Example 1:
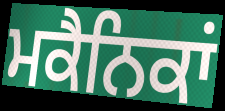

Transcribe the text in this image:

ਮਕੈਨਿਕਾਂ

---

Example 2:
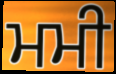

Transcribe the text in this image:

ਮਮੀ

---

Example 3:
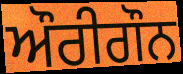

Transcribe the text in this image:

ਔਰੀਗੌਨ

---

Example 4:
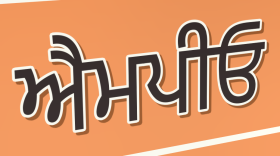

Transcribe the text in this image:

ਐਮਪੀਓ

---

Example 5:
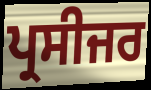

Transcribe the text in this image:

ਪ੍ਰਸੀਜਰ